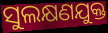
ସୁଲକ୍ଷଣଯୁକ୍ତ